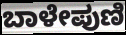
ಬಾಳೇಪುಣಿ